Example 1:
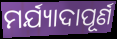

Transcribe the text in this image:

ମର୍ଯ୍ୟାଦାପୂର୍ଣ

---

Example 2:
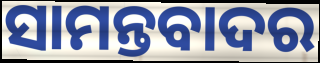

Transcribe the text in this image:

ସାମନ୍ତବାଦର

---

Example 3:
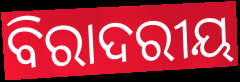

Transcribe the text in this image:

ବିରାଦରୀୟ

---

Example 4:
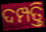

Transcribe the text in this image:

ଦମ୍ପତ୍ତି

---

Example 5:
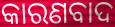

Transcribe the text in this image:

କାରଣବାଦ